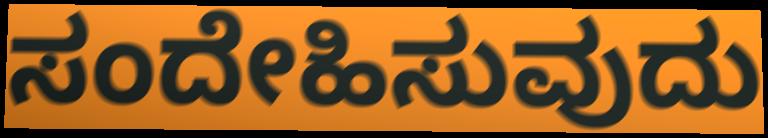
ಸಂದೇಹಿಸುವುದು